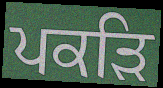
ਪਕੜਿ